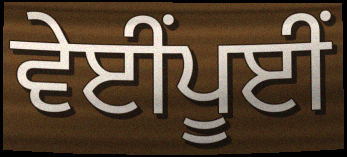
ਵੇਈਂਪੂਈਂ